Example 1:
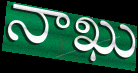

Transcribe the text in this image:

నాఖు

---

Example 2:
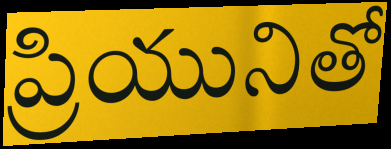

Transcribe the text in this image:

ప్రియునితో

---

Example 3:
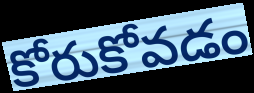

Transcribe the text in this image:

కోరుకోవడం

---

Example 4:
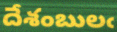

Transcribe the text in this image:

దేశంబులఁ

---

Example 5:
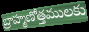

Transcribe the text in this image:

బ్రాహ్మణోత్తములకు